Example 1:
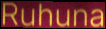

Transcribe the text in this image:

Ruhuna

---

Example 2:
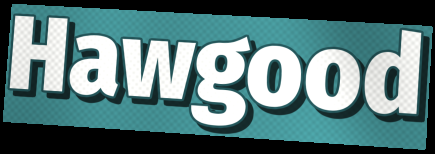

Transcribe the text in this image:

Hawgood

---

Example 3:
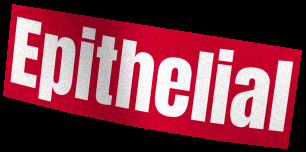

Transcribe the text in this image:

Epithelial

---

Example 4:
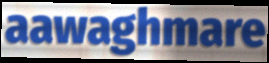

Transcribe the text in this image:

aawaghmare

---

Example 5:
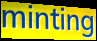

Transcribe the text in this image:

minting